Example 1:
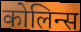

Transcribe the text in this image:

कोलिन्स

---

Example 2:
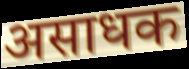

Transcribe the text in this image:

असाधक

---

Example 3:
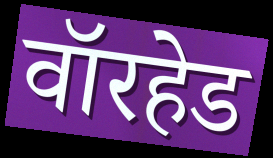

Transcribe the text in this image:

वॉरहेड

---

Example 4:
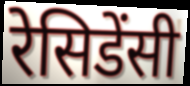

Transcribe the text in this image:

रेसिडेंसी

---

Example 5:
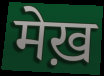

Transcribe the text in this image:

मेख़